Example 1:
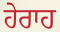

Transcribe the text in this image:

ਹੇਰਾਹ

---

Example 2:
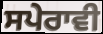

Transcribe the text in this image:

ਸਪੇਰਾਵੀ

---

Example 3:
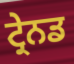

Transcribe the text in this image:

ਟ੍ਰੇਨਡ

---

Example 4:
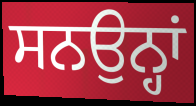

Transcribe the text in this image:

ਸਨਉਨ੍ਹਾਂ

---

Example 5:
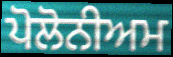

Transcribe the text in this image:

ਪੋਲੋਨੀਅਮ